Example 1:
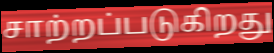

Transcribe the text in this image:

சாற்றப்படுகிறது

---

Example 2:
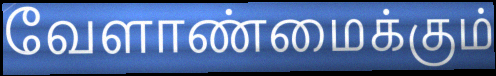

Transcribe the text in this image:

வேளாண்மைக்கும்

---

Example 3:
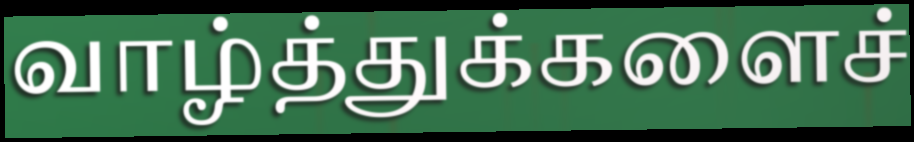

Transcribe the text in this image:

வாழ்த்துக்களைச்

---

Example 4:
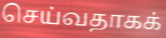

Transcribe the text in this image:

செய்வதாகக்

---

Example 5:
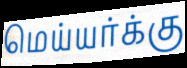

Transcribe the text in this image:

மெய்யர்க்கு